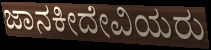
ಜಾನಕೀದೇವಿಯರು